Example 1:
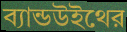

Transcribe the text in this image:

ব্যান্ডউইথের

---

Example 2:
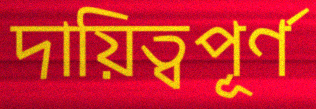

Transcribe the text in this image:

দায়িত্বপূর্ণ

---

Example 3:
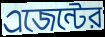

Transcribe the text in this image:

এজেন্টের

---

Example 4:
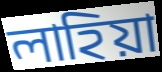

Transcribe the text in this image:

লাহিয়া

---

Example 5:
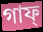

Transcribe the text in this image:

গাফ্